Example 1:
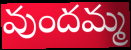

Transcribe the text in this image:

వుందమ్మ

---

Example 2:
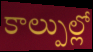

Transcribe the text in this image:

కాల్పుల్లో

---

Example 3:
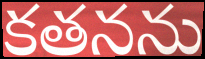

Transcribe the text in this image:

కతనను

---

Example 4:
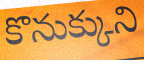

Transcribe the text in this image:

కొనుక్కుని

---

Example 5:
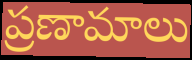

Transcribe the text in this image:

ప్రణామాలు